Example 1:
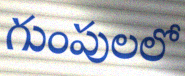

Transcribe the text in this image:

గుంపులలో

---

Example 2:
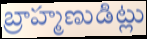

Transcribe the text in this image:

బ్రాహ్మణుడిట్లు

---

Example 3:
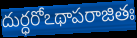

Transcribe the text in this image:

దుర్ధరోఽథాపరాజితః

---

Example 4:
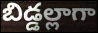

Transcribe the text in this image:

బిడ్డల్లాగా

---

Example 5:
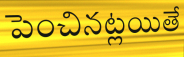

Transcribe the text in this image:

పెంచినట్లయితే